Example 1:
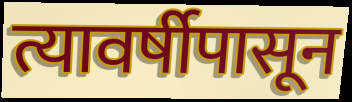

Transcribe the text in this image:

त्यावर्षीपासून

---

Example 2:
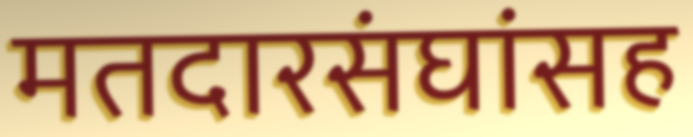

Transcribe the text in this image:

मतदारसंघांसह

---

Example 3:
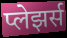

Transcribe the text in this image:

प्लेझर्स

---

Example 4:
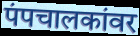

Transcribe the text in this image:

पंपचालकांवर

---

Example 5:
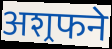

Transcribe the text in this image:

अश्रफने